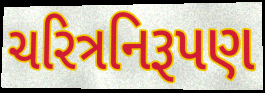
ચરિત્રનિરૂપણ